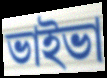
ভাইভা